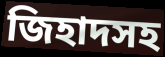
জিহাদসহ